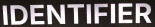
IDENTIFIER